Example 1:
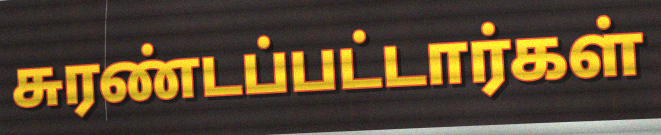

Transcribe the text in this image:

சுரண்டப்பட்டார்கள்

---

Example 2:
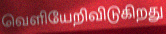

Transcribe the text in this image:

வெளியேறிவிடுகிறது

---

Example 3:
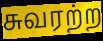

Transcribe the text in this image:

சுவரற்ற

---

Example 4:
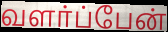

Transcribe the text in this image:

வளர்ப்பேன்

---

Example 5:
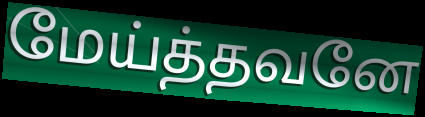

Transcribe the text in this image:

மேய்த்தவனே